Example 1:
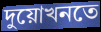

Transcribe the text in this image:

দুয়োখনতে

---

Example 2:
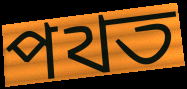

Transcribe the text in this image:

পথত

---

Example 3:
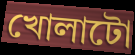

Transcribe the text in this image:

খোলাটো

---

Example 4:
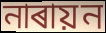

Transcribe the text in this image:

নাৰায়ন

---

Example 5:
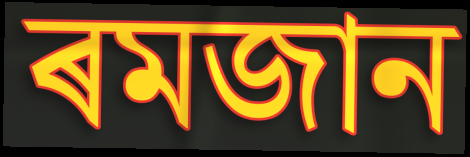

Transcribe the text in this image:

ৰমজান